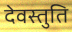
देवस्तुति